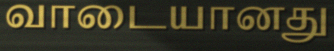
வாடையானது